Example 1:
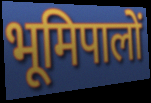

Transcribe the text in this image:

भूमिपालों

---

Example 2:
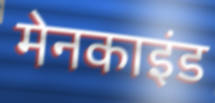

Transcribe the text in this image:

मेनकाइंड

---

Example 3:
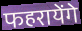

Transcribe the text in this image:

फहरायेंगे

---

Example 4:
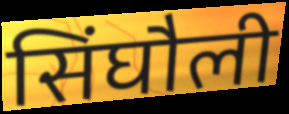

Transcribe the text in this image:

सिंघौली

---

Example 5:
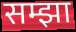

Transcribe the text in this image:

सम्झा